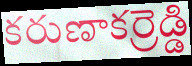
కరుణాకర్రెడ్డి